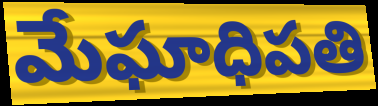
మేఘాధిపతి